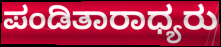
ಪಂಡಿತಾರಾಧ್ಯರು